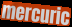
mercuric